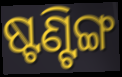
ଷ୍ଟଣ୍ଟିଙ୍ଗ